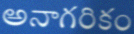
అనాగరికం